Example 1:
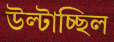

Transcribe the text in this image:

উল্টাচ্ছিল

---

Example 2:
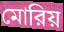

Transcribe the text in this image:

মোরিয়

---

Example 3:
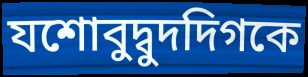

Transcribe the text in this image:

যশোবুদ্বুদদিগকে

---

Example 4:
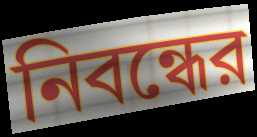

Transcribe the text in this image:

নিবন্ধের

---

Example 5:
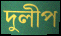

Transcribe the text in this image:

দুলীপ